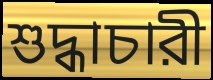
শুদ্ধাচারী